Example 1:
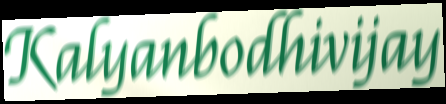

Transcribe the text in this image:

Kalyanbodhivijay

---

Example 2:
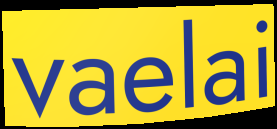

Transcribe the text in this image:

vaelai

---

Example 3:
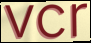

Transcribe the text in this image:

vcr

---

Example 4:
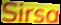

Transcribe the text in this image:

Sirsa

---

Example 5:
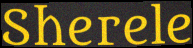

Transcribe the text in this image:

Sherele